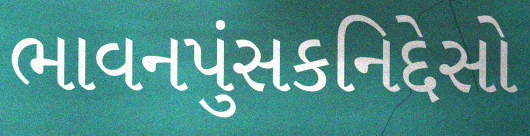
ભાવનપુંસકનિદ્દેસો